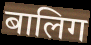
बालिग